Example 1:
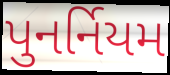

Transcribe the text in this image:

પુનર્નિયમ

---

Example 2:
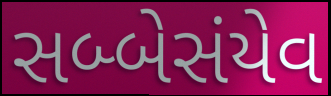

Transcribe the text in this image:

સબ્બેસંયેવ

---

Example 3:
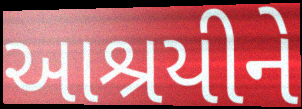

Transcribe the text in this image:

આશ્રયીને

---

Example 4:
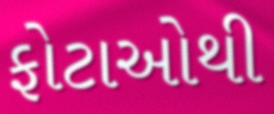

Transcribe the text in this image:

ફોટાઓથી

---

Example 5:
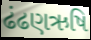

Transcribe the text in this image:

ઢંઢણઋષિ